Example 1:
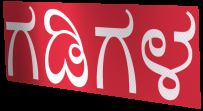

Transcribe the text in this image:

ಗಡಿಗಳ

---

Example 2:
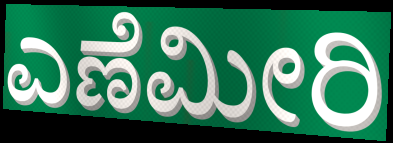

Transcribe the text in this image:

ಎಣೆಮೀರಿ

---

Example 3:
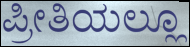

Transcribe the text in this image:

ಪ್ರೀತಿಯಲ್ಲೂ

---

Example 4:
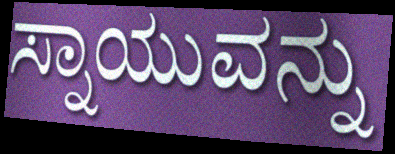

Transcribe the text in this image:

ಸ್ನಾಯುವನ್ನು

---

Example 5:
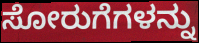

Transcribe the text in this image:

ಸೋರುಗೆಗಳನ್ನು